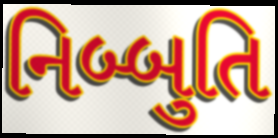
નિબ્બુતિ